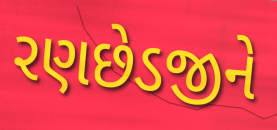
રણછેડજીને